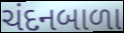
ચંદનબાળા